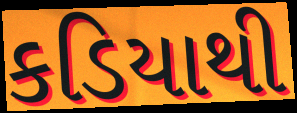
કડિયાથી